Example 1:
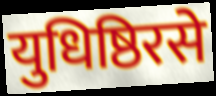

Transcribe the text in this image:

युधिष्ठिरसे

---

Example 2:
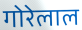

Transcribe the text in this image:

गोरेलाल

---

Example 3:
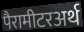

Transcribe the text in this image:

पैरामीटरअर्थ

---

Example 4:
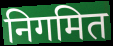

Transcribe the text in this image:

निगमित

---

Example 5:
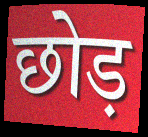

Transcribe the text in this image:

छोड़